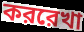
কররেখা